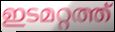
ഇടമറ്റത്ത്